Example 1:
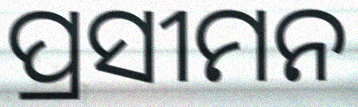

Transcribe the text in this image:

ପ୍ରସୀମନ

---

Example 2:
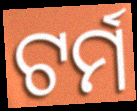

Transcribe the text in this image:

ଟର୍ମ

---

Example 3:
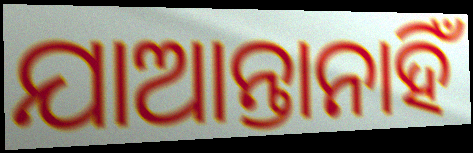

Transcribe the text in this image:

ଯାଆନ୍ତାନାହିଁ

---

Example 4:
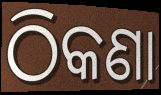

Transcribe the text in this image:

ଠିକଣା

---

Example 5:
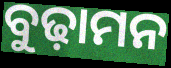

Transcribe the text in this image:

ବୁଢ଼ାମନ